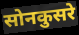
सोनकुसरे